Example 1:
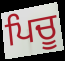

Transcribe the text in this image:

ਪਿਚੂ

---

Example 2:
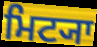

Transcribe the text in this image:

ਮਿਟ੍ਯਾ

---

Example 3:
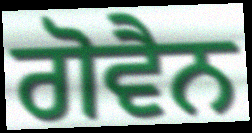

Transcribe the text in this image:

ਗੋਵੈਨ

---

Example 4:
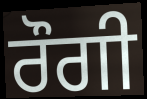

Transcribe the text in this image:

ਰੌਗੀ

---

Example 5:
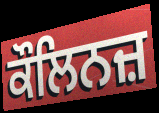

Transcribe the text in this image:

ਕੌਲਿਨਜ਼